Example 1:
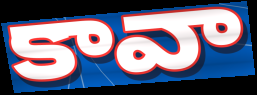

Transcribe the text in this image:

కావా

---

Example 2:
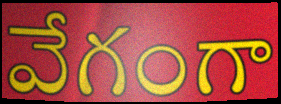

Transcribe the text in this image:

వేగంగా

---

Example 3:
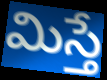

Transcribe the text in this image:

మిస్తే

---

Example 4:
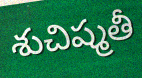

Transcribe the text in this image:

శుచిష్మతీ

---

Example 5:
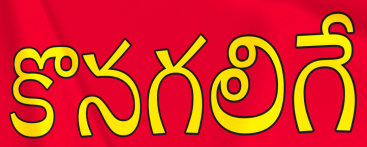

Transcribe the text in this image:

కొనగలిగే